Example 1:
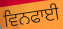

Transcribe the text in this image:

ਵਿਨਫਾਈ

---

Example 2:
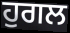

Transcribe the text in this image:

ਹੁਗਲ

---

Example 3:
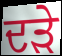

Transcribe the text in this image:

ਦੜੇ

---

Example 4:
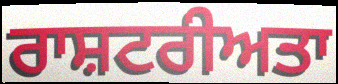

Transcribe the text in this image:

ਰਾਸ਼ਟਰੀਅਤਾ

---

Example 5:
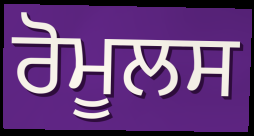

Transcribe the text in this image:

ਰੋਮੂਲਸ